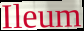
Ileum